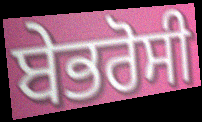
ਬੇਭਰੋਸੀ